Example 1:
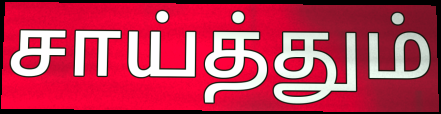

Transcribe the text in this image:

சாய்த்தும்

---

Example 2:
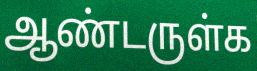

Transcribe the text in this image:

ஆண்டருள்க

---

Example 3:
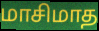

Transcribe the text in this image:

மாசிமாத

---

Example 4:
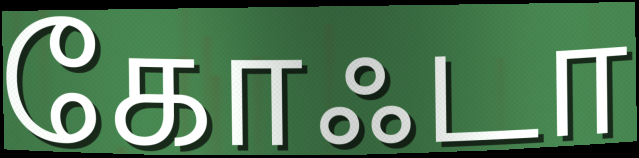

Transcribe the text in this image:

கோஃடா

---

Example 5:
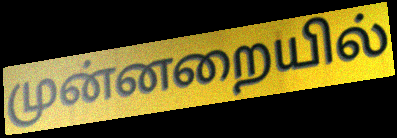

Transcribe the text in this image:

முன்னறையில்